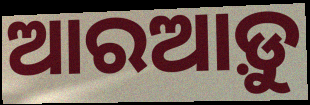
ଆରଆଡ଼ୁ